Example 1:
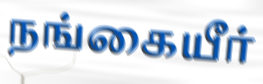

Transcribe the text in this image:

நங்கையீர்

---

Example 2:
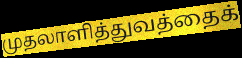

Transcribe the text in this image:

முதலாளித்துவத்தைக்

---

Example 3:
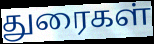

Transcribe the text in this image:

துரைகள்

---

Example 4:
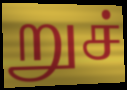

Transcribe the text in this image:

றுச்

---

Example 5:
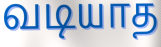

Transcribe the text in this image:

வடியாத